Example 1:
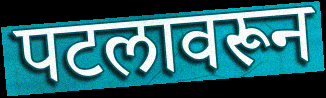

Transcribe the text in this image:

पटलावरून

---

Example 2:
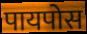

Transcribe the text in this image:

पायपोस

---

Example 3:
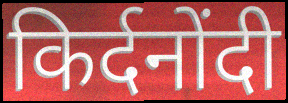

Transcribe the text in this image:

किर्दनोंदी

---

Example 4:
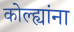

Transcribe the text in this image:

कोल्ह्यांना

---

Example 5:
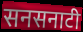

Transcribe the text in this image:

सनसनाटी